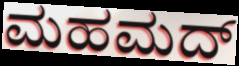
ಮಹಮದ್